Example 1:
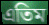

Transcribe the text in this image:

এতিম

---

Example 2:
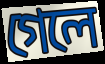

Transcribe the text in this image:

গেলে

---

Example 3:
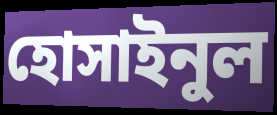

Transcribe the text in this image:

হোসাইনুল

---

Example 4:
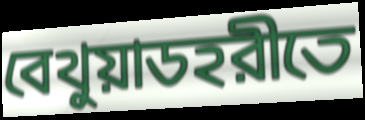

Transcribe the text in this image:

বেথুয়াডহরীতে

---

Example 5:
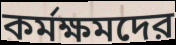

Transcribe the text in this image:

কর্মক্ষমদের